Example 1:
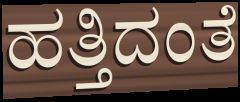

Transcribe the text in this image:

ಹತ್ತಿದಂತೆ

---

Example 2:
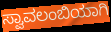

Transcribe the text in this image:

ಸ್ವಾವಲಂಬಿಯಾಗಿ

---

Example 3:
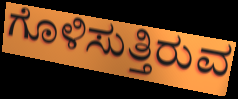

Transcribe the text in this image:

ಗೊಳಿಸುತ್ತಿರುವ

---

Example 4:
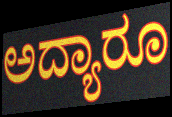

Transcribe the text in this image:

ಅದ್ಯಾರೂ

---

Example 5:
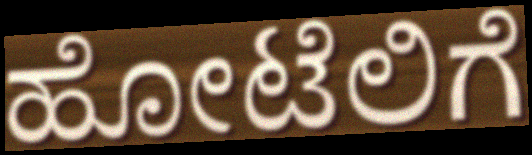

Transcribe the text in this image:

ಹೋಟೆಲಿಗೆ